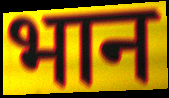
भान